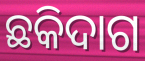
ଛକିଦାଗ